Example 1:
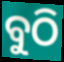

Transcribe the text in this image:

ବୁଠି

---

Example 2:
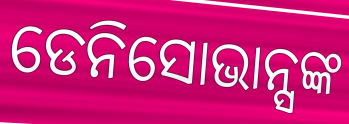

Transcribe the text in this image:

ଡେନିସୋଭାନ୍ସଙ୍କ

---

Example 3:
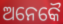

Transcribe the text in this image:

ଅନେକୈ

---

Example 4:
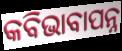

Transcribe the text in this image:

କବିଭାବାପନ୍ନ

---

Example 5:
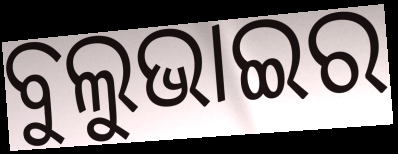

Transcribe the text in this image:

ବୁଲୁଭାଇର